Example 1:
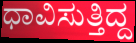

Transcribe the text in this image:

ಧಾವಿಸುತ್ತಿದ್ದ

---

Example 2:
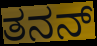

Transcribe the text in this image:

ತನನ್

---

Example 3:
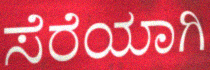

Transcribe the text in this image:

ಸೆರೆಯಾಗಿ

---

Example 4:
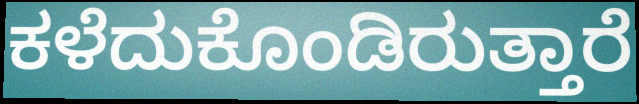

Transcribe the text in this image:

ಕಳೆದುಕೊಂಡಿರುತ್ತಾರೆ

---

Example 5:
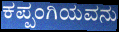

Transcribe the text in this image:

ಕಪ್ಪಂಗಿಯವನು